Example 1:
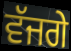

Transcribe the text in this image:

ਵੱਜਗੇ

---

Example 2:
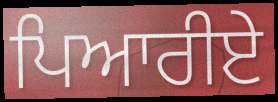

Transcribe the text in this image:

ਪਿਆਰੀਏ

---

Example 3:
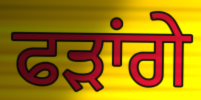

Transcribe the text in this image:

ਫੜਾਂਗੇ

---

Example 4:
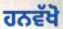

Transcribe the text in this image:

ਹਨਵੱਖੋ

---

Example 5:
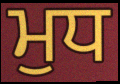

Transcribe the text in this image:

ਮੁਧ